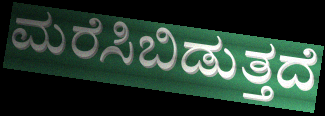
ಮರೆಸಿಬಿಡುತ್ತದೆ